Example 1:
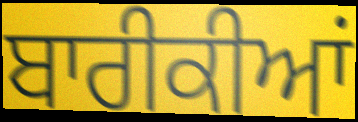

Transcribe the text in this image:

ਬਾਰੀਕੀਆਂ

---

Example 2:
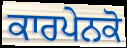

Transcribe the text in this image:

ਕਾਰਪੇਨਕੋ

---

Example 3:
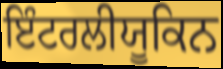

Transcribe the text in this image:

ਇੰਟਰਲੀਯੂਕਿਨ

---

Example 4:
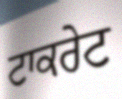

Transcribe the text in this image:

ਟਾਕਰੇਟ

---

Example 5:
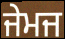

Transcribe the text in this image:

ਜੇਮਜ